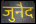
जुनैद